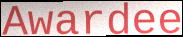
Awardee